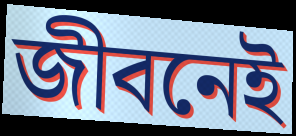
জীবনেই